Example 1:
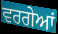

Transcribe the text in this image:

ਵਰਗੇਆਂ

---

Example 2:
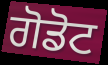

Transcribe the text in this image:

ਗੋਡੋਟ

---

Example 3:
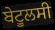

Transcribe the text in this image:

ਬੇਟੂਲਸੀ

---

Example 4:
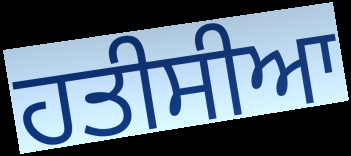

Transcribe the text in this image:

ਹਤੀਸੀਆ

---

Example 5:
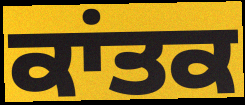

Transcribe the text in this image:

ਕਾਂਤਕ